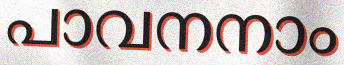
പാവനനാം